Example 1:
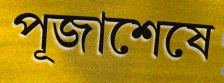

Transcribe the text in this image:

পূজাশেষে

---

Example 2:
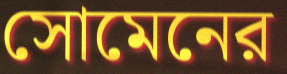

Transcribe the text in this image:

সোমেনের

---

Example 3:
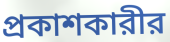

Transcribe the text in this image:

প্রকাশকারীর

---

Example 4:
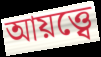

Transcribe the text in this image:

আয়ত্ত্বে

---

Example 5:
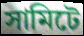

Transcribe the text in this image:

সামিটে